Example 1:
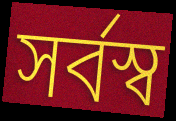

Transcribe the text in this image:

সৰ্বস্ব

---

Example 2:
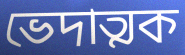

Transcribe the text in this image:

ভেদাত্মক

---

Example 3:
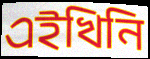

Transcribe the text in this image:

এইখিনি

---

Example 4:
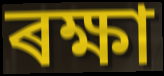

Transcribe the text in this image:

ৰক্ষা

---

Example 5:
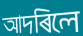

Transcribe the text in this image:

আদৰিলে